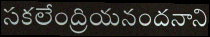
సకలేంద్రియనందనాని